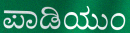
ಪಾಡಿಯುಂ